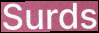
Surds